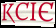
KCIE